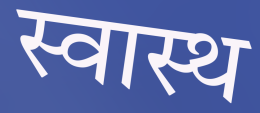
स्‍वास्‍थ